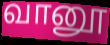
வானூ